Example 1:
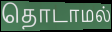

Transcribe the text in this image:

தொடாமல்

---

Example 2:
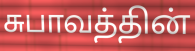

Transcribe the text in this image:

சுபாவத்தின்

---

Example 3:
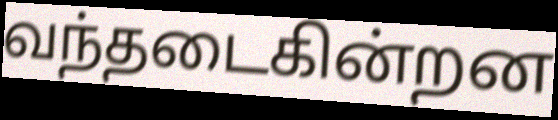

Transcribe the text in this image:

வந்தடைகின்றன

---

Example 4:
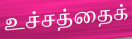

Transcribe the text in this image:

உச்சத்தைக்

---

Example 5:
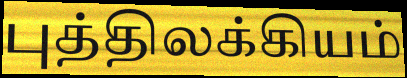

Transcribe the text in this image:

புத்திலக்கியம்